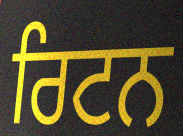
ਰਿਟਨ